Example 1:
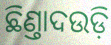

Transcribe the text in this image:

ଛିଣ୍ତାଦଉଡ଼ି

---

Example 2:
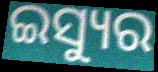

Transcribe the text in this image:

ଇସ୍ୟୁର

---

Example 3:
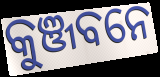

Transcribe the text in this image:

କୁଞ୍ଜବନେ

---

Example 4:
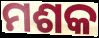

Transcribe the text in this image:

ମଶକ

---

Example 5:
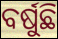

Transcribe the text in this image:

ବର୍ଷୁଛି